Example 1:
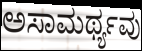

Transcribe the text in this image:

ಅಸಾಮರ್ಥ್ಯವು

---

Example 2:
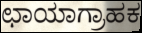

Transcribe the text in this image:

ಛಾಯಾಗ್ರಾಹಕ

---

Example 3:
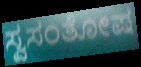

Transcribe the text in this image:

ಸ್ವಸಂತೋಷ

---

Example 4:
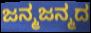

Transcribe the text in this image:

ಜನ್ಮಜನ್ಮದ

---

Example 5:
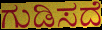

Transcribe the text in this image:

ಗುಡಿಸದೆ